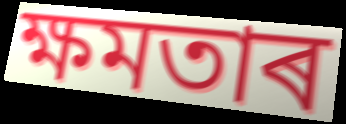
ক্ষমতাৰ